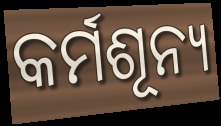
କର୍ମଶୂନ୍ୟ